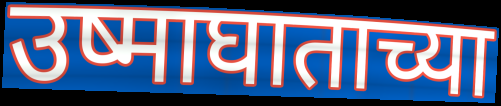
उष्माघाताच्या